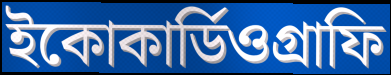
ইকোকার্ডিওগ্রাফি